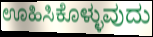
ಊಹಿಸಿಕೊಳ್ಳುವುದು